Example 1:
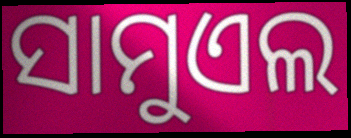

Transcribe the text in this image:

ସାମୁଏଲ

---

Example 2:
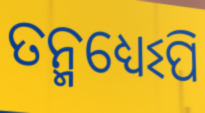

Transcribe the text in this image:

ତନ୍ମଧ୍ୟେଽପି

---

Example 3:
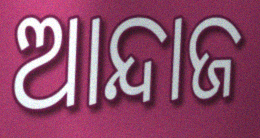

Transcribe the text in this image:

ଆନ୍ଦାଜ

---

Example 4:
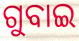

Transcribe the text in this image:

ଗୁବାଇ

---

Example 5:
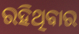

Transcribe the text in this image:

ରହିଥିବାର